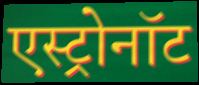
एस्ट्रोनॉट